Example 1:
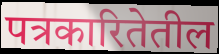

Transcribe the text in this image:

पत्रकारितेतील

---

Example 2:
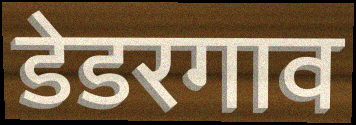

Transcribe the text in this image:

डेडरगाव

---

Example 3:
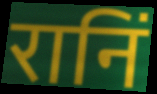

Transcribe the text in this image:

रानिं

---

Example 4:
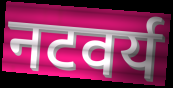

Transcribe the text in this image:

नटवर्य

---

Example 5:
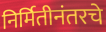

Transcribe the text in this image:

निर्मितीनंतरचे